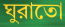
ঘুরাতো